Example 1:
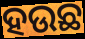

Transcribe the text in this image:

ହଉଛ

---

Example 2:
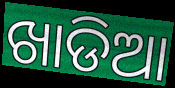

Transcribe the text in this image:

ଖାଡିଆ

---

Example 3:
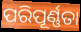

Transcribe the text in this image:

ପରିପୂର୍ଣ୍ଣତା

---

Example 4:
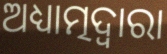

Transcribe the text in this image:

ଅଧ୍ୟାତ୍ମଦ୍ୱାରା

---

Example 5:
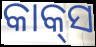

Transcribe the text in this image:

କାକ୍‌ସ